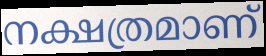
നക്ഷത്രമാണ്